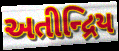
અતીન્દ્રિય